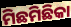
ମିଛମିଛିକା